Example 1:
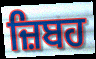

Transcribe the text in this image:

ਜ਼ਿਬਹ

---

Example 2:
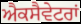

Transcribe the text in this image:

ਐਕਸੈਵੇਟਰਾਂ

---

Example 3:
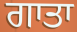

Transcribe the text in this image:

ਗਾਤਾ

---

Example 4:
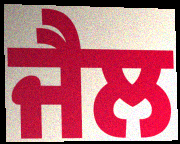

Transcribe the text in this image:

ਜੈਲ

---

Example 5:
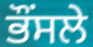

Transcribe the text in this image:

ਭੌਂਸਲੇ